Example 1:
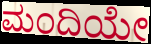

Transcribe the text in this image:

ಮಂದಿಯೇ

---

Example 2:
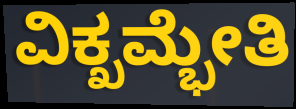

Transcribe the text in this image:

ವಿಕ್ಖಮ್ಭೇತಿ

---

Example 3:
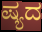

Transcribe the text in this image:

ಷ್ಯದ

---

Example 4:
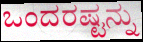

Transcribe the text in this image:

ಒಂದರಷ್ಟನ್ನು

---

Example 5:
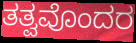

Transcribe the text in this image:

ತತ್ವವೊಂದರ